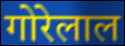
गोरेलाल